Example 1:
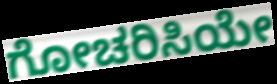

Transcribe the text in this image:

ಗೋಚರಿಸಿಯೇ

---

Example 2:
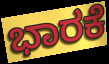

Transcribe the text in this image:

ಭಾರಕೆ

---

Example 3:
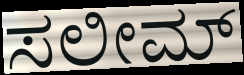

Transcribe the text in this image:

ಸಲೀಮ್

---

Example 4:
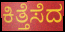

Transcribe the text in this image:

ಕಿತ್ತೆಸೆದ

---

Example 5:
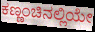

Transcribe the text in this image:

ಕಣ್ಣಂಚಿನಲ್ಲಿಯೇ